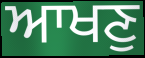
ਆਖਣੁ